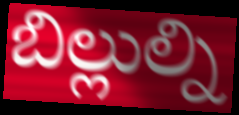
బిల్లుల్ని